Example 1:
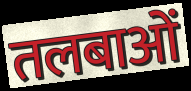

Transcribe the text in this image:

तलबाओं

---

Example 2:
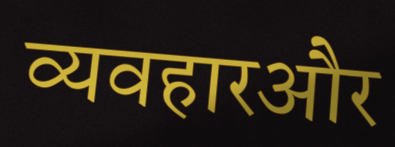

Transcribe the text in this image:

व्यवहारऔर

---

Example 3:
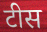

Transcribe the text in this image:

टीस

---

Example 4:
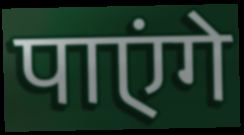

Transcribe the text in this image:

पाएंगे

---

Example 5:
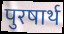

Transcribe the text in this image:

पुरषार्थ